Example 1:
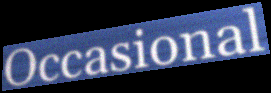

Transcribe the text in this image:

Occasional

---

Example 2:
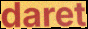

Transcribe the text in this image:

daret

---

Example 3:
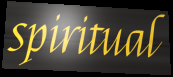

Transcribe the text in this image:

spiritual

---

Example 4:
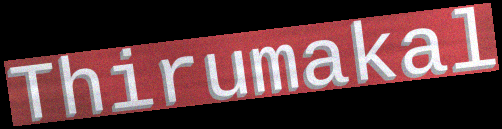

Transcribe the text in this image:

Thirumakal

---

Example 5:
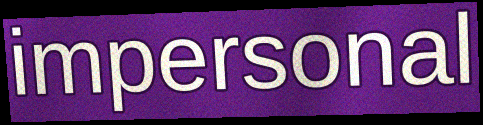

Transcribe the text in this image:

impersonal